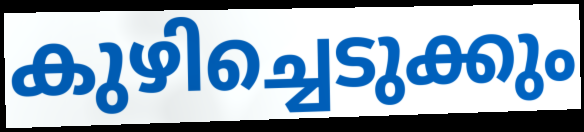
കുഴിച്ചെടുക്കും